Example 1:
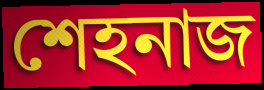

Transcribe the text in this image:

শেহনাজ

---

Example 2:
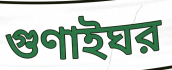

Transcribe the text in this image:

গুণাইঘর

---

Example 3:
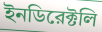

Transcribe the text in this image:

ইনডিরেক্টলি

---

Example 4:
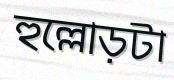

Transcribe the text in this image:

হুল্লোড়টা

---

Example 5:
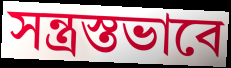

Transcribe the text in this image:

সন্ত্রস্তভাবে